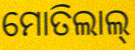
ମୋତିଲାଲ୍